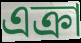
এক্রা